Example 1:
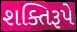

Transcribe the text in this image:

શક્તિરૂપે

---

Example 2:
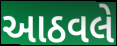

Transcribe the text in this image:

આઠવલે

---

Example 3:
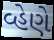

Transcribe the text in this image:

વ્હેણે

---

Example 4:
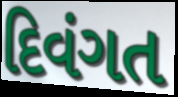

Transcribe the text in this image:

દિવંગત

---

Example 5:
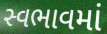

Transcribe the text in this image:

સ્વભાવમાં